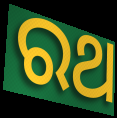
ରଥ